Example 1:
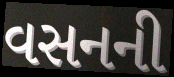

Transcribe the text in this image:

વસનની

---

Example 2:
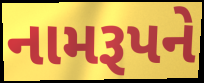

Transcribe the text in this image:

નામરૂપને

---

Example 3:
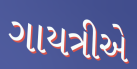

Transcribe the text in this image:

ગાયત્રીએ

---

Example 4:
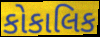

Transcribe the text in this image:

કોકાલિક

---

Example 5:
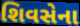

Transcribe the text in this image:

શિવસેના